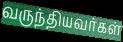
வருந்தியவர்கள்